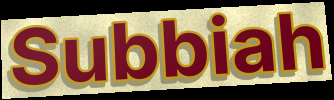
Subbiah